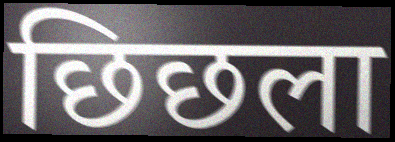
छिछला